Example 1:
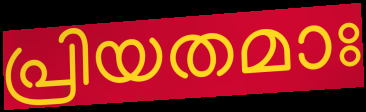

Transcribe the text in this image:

പ്രിയതമാഃ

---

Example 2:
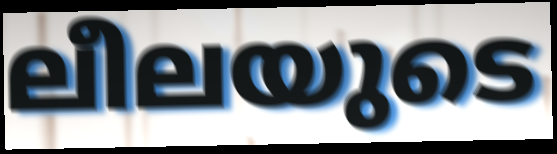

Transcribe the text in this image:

ലീലയുടെ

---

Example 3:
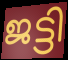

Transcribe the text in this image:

ജട്ടി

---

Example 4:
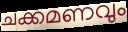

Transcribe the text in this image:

ചക്കമണവും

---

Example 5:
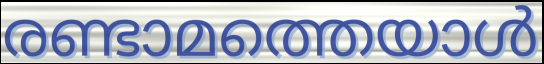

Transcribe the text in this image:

രണ്ടാമത്തെയാൾ